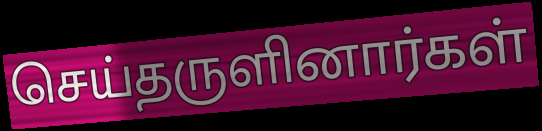
செய்தருளினார்கள்